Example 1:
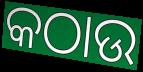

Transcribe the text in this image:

କଠାଉ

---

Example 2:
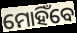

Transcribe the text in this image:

ମୋହିଁବେ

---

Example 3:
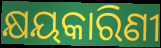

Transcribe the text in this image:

କ୍ଷୟକାରିଣୀ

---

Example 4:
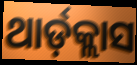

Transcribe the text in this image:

ଥାର୍ଡ଼କ୍ଲାସ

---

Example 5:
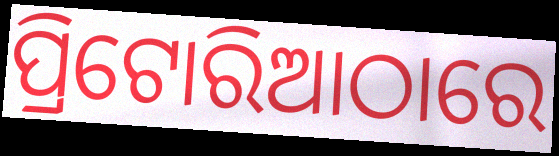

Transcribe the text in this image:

ପ୍ରିଟୋରିଆଠାରେ